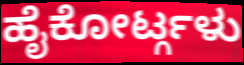
ಹೈಕೋರ್ಟ್ಗಳು